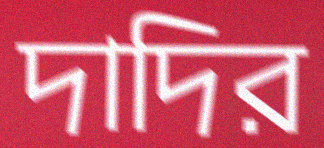
দাদির